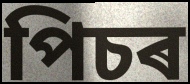
পিচৰ